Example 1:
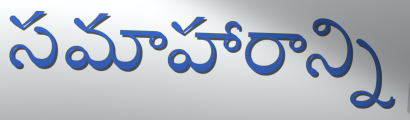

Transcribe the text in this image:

సమాహారాన్ని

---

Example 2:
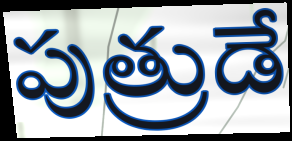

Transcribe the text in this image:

పుత్రుడే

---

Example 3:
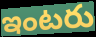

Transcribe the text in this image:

ఇంటరు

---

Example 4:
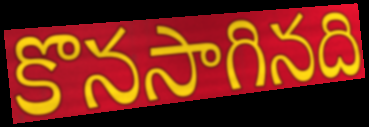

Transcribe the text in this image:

కొనసాగినది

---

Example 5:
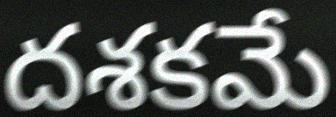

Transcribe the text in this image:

దశకమే